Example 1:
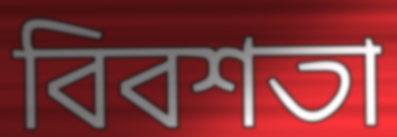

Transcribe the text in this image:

বিবশতা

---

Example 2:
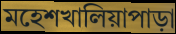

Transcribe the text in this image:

মহেশখালিয়াপাড়া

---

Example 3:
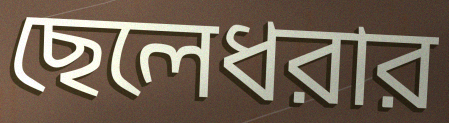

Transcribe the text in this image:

ছেলেধরার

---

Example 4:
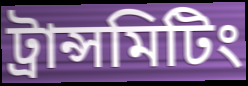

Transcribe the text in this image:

ট্রান্সমিটিং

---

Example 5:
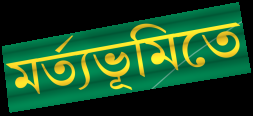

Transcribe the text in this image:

মর্ত্যভূমিতে